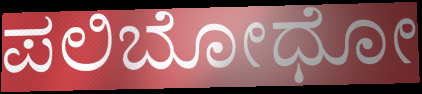
ಪಲಿಬೋಧೋ